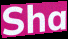
Sha